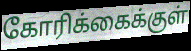
கோரிக்கைக்குள்